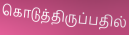
கொடுத்திருப்பதில்